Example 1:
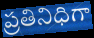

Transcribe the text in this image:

ప్రతినిధిగా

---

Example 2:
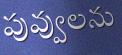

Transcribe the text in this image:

పువ్వులను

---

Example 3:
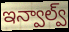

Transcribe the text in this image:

ఇన్వాల్వ్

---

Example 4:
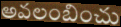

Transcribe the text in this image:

అవలంబించు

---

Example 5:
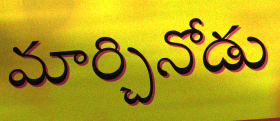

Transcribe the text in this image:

మార్చినోడు